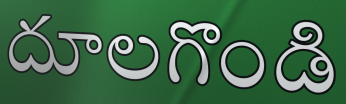
దూలగొండి